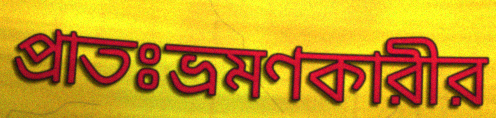
প্রাতঃভ্রমণকারীর